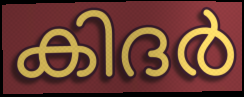
കിദർ